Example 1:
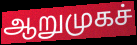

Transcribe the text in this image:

ஆறுமுகச்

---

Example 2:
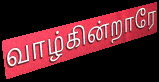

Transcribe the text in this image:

வாழ்கின்றாரே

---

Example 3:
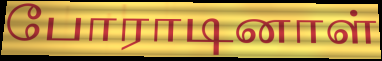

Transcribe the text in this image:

போராடினாள்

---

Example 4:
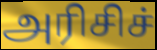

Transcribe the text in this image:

அரிசிச்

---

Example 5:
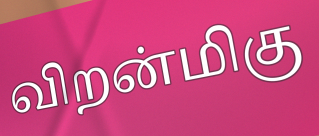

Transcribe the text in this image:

விறன்மிகு